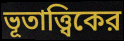
ভূতাত্ত্বিকের